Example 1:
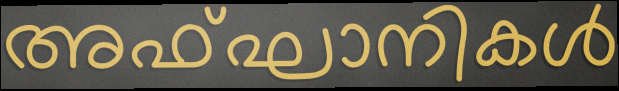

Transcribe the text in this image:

അഫ്ഘാനികൾ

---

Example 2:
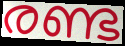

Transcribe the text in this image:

രണ്ട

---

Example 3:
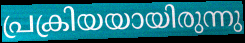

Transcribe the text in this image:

പ്രക്രിയയായിരുന്നു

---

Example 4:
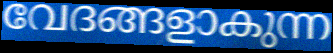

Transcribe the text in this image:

വേദങ്ങളാകുന്ന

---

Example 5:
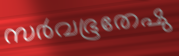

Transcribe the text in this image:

സർവഭൂതേഷു